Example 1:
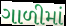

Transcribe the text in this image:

ગાળીમાં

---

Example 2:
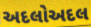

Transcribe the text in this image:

અદલોઅદલ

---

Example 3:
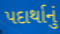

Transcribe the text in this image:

પદાર્થાનું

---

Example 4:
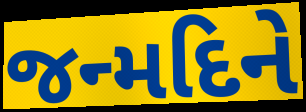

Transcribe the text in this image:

જન્મદિને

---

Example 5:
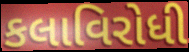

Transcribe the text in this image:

કલાવિરોધી